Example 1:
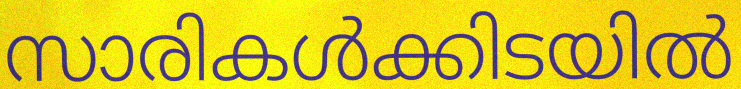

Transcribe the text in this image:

സാരികൾക്കിടയിൽ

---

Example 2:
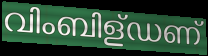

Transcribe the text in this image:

വിംബിള്ഡണ്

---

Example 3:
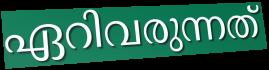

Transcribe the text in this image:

ഏറിവരുന്നത്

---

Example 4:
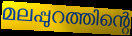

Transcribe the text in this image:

മലപ്പുറത്തിന്റെ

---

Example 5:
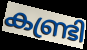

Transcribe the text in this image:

കണ്ട്രി